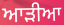
ਆੜੀਆ